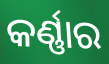
କର୍ଣ୍ଣାର